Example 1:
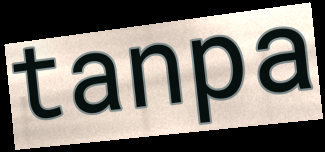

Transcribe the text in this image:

tanpa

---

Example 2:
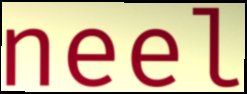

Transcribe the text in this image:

neel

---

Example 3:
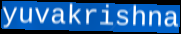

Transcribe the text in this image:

yuvakrishna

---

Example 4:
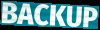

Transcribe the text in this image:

BACKUP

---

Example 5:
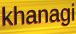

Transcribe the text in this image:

khanagi